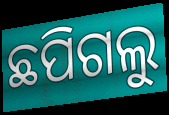
ଛପିଗଲୁ